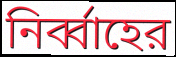
নির্ব্বাহের